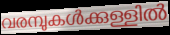
വരമ്പുകൾക്കുള്ളിൽ